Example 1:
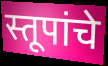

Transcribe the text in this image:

स्तूपांचे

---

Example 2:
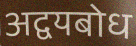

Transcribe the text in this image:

अद्वयबोध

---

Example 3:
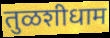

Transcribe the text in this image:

तुळशीधाम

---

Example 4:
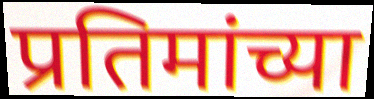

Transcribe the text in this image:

प्रतिमांच्या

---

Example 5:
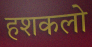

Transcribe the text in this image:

हशकलो